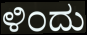
ಳಿಂದು